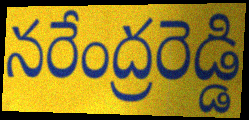
నరేంద్రరెడ్డి